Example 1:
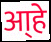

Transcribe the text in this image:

आ्हे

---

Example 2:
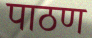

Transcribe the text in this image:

पाठण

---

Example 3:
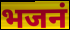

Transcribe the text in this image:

भजनं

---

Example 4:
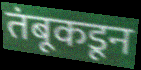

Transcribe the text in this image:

तंबूकडून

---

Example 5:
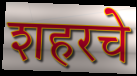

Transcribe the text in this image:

शहरचे